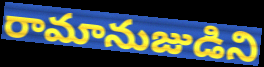
రామానుజుడిని